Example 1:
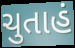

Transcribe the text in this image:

ચુતાહં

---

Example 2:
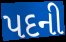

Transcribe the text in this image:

પદની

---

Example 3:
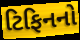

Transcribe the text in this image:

ટિફિનનો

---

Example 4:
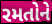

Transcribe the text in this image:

રમતોને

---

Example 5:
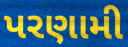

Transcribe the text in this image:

પરણામી